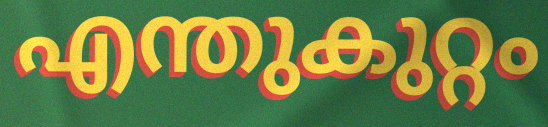
എന്തുകുറ്റം